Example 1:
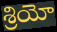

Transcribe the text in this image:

శ్రియో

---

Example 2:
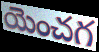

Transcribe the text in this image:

యెంచగ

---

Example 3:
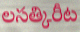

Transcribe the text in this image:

లసత్కిరీట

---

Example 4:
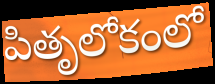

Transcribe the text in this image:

పితృలోకంలో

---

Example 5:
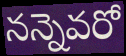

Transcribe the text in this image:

నన్నెవరో